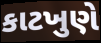
કાટખુણે